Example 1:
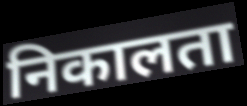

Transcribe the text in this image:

निकालता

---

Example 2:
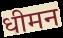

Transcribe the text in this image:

धीमन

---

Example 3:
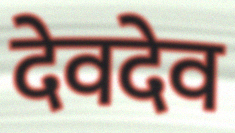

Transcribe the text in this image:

देवदेव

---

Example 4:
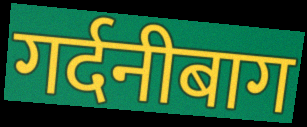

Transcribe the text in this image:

गर्दनीबाग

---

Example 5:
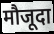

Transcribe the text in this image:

मौजूदा